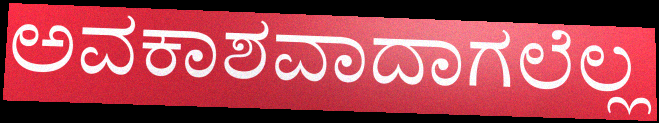
ಅವಕಾಶವಾದಾಗಲೆಲ್ಲ